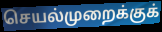
செயல்முறைக்குக்